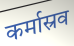
कर्मास्रव